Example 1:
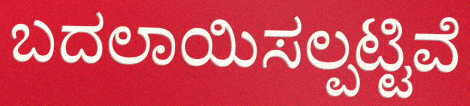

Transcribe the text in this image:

ಬದಲಾಯಿಸಲ್ಪಟ್ಟಿವೆ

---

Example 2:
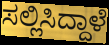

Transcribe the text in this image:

ಸಲ್ಲಿಸಿದ್ದಾಳೆ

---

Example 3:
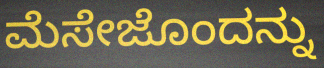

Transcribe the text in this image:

ಮೆಸೇಜೊಂದನ್ನು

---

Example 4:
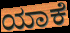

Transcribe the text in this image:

ಯಾಕೆ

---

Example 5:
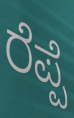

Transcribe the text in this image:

ರೆಪ್ಪೆ